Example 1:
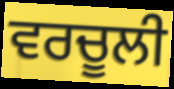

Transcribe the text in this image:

ਵਰਚੂਲੀ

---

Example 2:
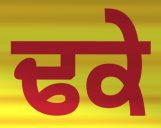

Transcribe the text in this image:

ਢਕੇ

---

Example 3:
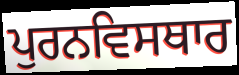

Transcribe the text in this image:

ਪੁਰਨਵਿਸਥਾਰ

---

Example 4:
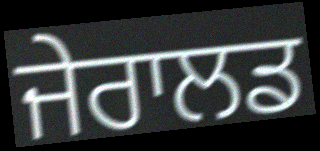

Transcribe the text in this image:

ਜੇਰਾਲਡ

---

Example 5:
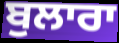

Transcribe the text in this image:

ਬੁਲਾਰਾ